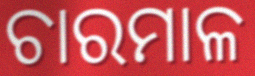
ଚାରମାଳ